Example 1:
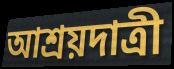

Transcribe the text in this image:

আশ্রয়দাত্রী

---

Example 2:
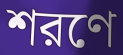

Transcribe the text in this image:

শরণে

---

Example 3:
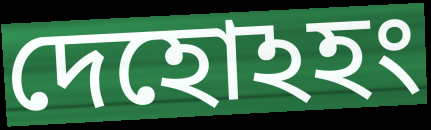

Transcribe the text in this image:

দেহোঽহং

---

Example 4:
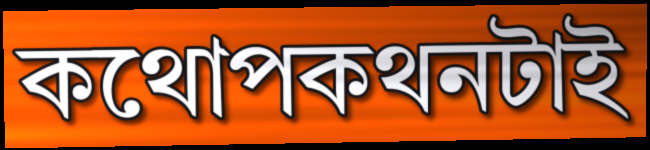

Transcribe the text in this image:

কথোপকথনটাই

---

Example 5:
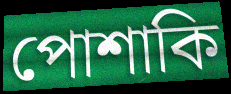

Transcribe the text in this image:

পোশাকি